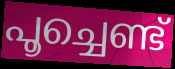
പൂച്ചെണ്ട്